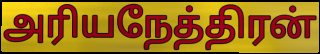
அரியநேத்திரன்